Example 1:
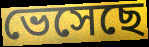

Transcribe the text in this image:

ভেসেছে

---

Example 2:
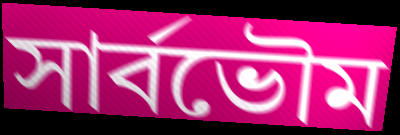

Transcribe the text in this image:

সার্বভৌম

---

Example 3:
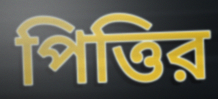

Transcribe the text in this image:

পিত্তির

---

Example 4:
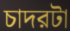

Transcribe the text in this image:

চাদরটা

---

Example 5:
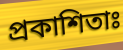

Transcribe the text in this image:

প্রকাশিতাঃ